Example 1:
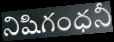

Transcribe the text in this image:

నిషిగంధనీ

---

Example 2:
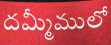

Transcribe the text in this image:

దమ్మీములో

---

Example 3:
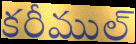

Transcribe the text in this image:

కరీముల్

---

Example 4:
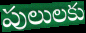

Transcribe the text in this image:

పులులకు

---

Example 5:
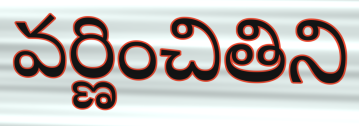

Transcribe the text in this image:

వర్ణించితిని